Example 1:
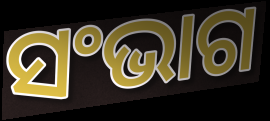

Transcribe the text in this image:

ସଂଭାଗ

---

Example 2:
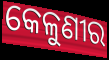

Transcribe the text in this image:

କେଳୁଣୀର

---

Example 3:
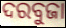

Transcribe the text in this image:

ଦରବୁଜା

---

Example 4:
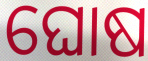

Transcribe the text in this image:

ଘୋଷ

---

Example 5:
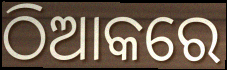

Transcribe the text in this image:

ଠିଆକରେ